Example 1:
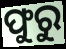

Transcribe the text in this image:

ଫୁରୁ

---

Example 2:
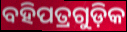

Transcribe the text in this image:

ବହିପତ୍ରଗୁଡ଼ିକ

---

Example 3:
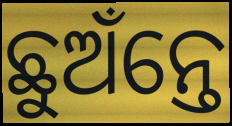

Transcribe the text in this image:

ଛୁଅଁନ୍ତେ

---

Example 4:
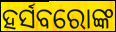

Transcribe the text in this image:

ହର୍ସବରୋଙ୍କ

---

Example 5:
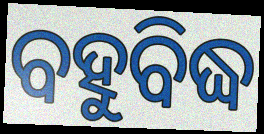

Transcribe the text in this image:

ବହୁବିଦ୍ଧ